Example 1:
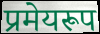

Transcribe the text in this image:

प्रमेयरूप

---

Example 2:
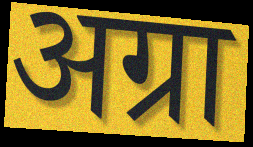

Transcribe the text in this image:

अग्रा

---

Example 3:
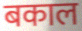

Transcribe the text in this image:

बकाल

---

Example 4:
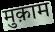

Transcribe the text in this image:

मुक़ाम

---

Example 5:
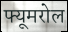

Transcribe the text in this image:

फ्यूमरोल